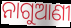
ନାଗୁଆଣୀ